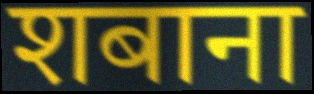
शबाना